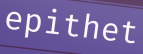
epithet